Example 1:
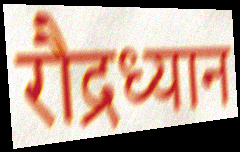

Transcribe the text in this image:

रौद्रध्यान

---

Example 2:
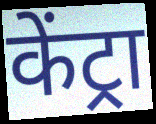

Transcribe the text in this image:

केंट्रा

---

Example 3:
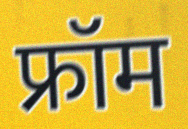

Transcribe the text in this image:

फ्रॉम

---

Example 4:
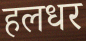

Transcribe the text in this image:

हलधर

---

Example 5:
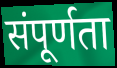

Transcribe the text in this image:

संपूर्णता